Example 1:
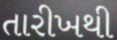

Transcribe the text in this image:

તારીખથી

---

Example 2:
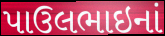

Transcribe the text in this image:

પાઉલભાઇનાં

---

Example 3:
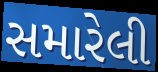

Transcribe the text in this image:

સમારેલી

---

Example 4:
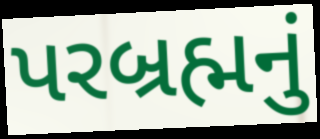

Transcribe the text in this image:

પરબ્રહ્મનું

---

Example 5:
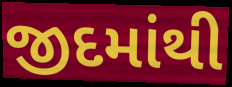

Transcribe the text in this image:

જીદમાંથી